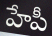
హేపీ